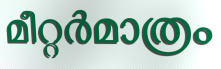
മീറ്റർമാത്രം